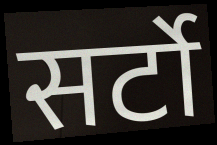
सर्टो